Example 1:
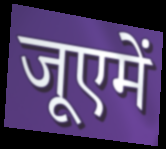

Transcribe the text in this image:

जूएमें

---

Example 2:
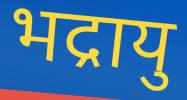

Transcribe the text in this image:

भद्रायु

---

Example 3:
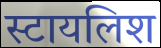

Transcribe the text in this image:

स्टायलिश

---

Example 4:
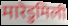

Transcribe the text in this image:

मारेडुमिली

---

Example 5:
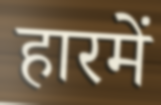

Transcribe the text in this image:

हारमें